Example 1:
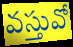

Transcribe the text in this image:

వస్తువో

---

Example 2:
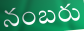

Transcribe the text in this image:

నంబరు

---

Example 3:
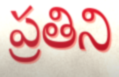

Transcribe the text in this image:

ప్రతిని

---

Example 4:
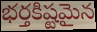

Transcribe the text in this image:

భర్తకిష్టమైన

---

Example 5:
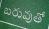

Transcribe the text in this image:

బరువుతో